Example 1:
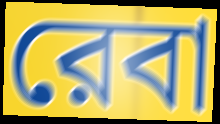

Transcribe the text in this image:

রেবা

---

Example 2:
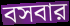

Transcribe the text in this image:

বসবার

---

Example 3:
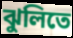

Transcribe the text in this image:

ঝুলিতে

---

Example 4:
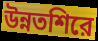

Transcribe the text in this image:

উন্নতশিরে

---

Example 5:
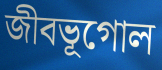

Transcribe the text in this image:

জীবভূগোল